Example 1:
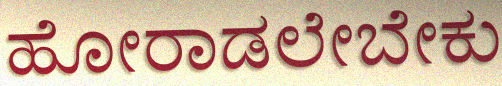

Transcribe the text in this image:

ಹೋರಾಡಲೇಬೇಕು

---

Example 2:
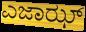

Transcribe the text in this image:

ಎಜಾಝ್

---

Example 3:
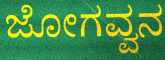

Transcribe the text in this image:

ಜೋಗವ್ವನ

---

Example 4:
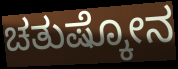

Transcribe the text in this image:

ಚತುಷ್ಕೋನ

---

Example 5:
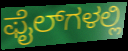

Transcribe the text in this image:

ಫೈಲ್‌ಗಳಲ್ಲಿ